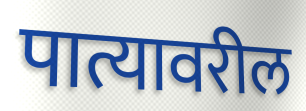
पात्यावरील